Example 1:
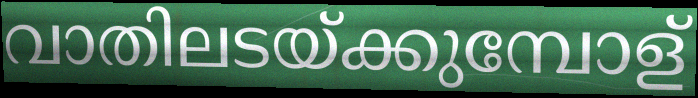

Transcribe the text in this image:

വാതിലടയ്ക്കുമ്പോള്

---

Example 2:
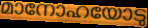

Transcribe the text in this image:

മാനോഹയോടു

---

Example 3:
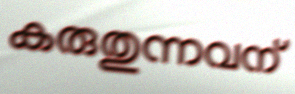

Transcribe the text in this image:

കരുതുന്നവന്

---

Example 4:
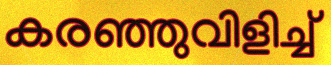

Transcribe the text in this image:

കരഞ്ഞുവിളിച്ച്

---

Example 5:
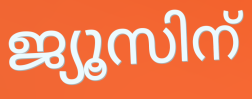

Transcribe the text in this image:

ജ്യൂസിന്